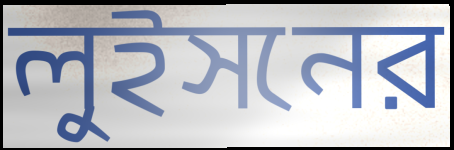
লুইসনের